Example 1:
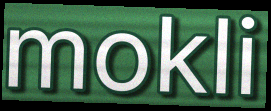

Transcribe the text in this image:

mokli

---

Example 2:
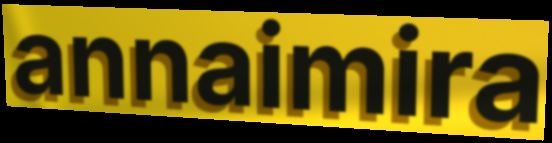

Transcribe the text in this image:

annaimira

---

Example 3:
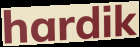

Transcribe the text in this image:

hardik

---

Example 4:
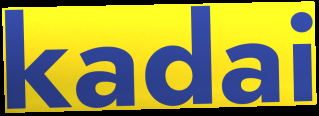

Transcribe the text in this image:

kadai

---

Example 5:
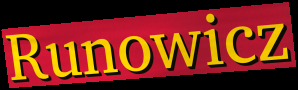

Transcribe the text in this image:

Runowicz